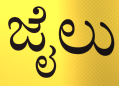
ಜೈಲು